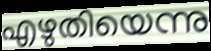
എഴുതിയെന്നു